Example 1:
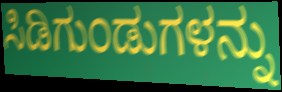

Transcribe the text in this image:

ಸಿಡಿಗುಂಡುಗಳನ್ನು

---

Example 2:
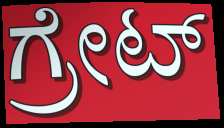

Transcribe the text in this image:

ಗ್ರೇಟ್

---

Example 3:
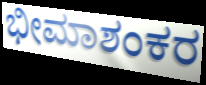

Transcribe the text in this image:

ಭೀಮಾಶಂಕರ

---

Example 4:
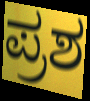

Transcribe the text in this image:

ಪ್ರಶ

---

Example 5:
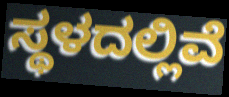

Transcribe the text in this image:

ಸ್ಥಳದಲ್ಲಿವೆ